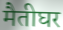
मैतीघर